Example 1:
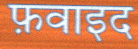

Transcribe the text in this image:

फ़वाइद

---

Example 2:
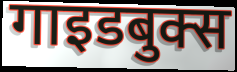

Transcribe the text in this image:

गाइडबुक्स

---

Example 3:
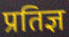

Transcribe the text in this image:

प्रतिज्ञ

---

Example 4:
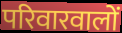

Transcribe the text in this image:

परिवारवालों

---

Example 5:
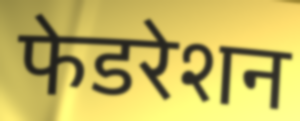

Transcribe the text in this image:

फेडरेशन